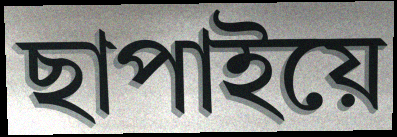
ছাপাইয়ে